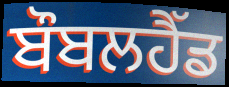
ਬੌਬਲਹੈੱਡ